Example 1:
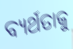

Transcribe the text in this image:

ବ୍ୟର୍ଥତାକୁ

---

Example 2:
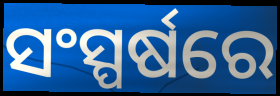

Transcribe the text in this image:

ସଂସ୍ପର୍ଷରେ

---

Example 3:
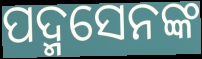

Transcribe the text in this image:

ପଦ୍ମସେନଙ୍କ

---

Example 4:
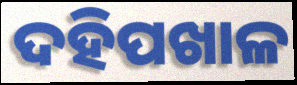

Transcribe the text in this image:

ଦହିପଖାଳ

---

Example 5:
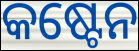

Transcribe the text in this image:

କଷ୍ଟେନ